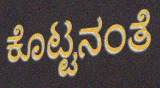
ಕೊಟ್ಟನಂತೆ